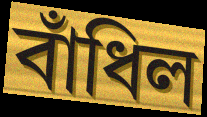
বাঁধিল